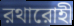
রথারোহী